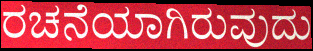
ರಚನೆಯಾಗಿರುವುದು